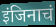
इंजिनाचं